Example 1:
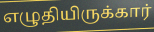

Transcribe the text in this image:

எழுதியிருக்கார்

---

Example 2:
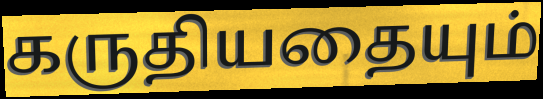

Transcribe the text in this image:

கருதியதையும்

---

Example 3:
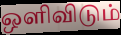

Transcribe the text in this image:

ஒளிவிடும்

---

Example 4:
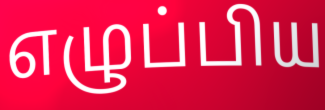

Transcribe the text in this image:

எழுப்பிய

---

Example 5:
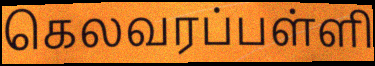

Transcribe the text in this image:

கெலவரப்பள்ளி